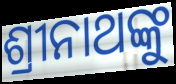
ଶ୍ରୀନାଥଙ୍କୁ